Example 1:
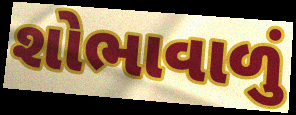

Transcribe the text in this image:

શોભાવાળું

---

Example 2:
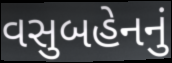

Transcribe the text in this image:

વસુબહેનનું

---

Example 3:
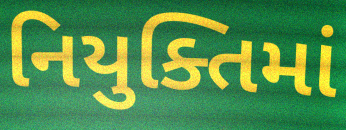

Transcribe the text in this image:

નિયુક્તિમાં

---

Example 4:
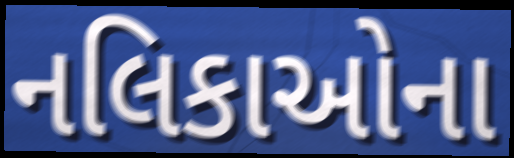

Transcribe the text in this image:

નલિકાઓના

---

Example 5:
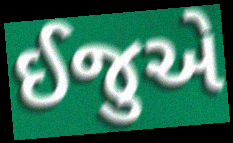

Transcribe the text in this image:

ઈજુએ